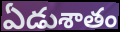
ఏడుశాతం